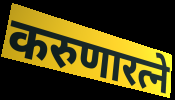
करुणारत्ने